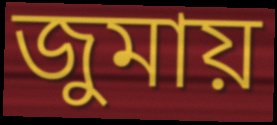
জুমায়